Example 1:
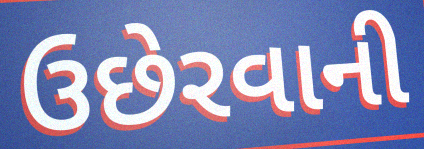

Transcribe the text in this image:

ઉછેરવાની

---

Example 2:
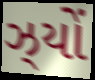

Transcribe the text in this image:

ઝ્યોં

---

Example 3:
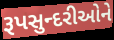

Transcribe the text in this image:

રૂપસુન્દરીઓને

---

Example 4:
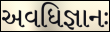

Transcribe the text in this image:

અવધિજ્ઞાનઃ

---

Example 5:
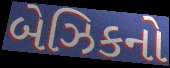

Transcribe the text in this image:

બેઝિકનો